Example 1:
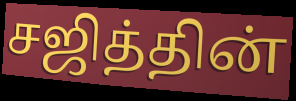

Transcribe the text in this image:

சஜித்தின்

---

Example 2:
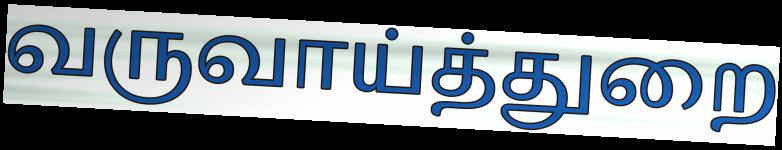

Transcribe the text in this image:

வருவாய்த்துறை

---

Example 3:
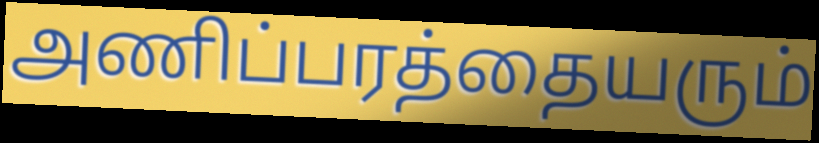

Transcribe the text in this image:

அணிப்பரத்தையரும்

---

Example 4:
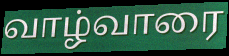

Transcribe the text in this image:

வாழ்வாரை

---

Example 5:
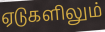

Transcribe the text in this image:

ஏடுகளிலும்